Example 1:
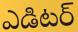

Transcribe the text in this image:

ఎడిటర్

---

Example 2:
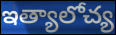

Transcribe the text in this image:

ఇత్యాలోచ్య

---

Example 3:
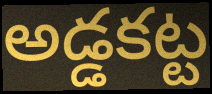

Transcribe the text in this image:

అడ్డకట్ట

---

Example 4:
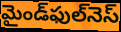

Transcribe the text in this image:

మైండ్‌ఫుల్‌నెస్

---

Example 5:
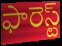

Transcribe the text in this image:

ఫారెస్ట్